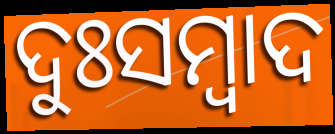
ଦୁଃସମ୍ବାଦ